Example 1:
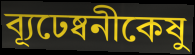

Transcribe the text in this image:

ব্যূঢেষ্বনীকেষু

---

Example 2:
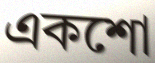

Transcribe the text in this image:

একশো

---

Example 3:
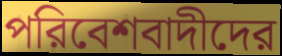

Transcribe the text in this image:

পরিবেশবাদীদের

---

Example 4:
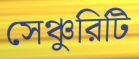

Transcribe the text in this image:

সেঞ্চুরিটি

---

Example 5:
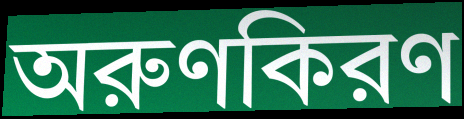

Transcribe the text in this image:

অরুণকিরণ